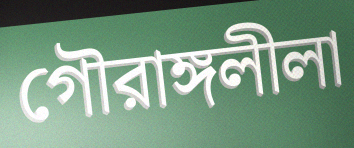
গৌরাঙ্গলীলা